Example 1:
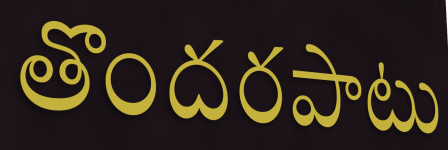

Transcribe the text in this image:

తొందరపాటు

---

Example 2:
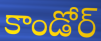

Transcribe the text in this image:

కాండోర్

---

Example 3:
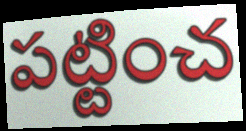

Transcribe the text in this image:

పట్టించ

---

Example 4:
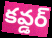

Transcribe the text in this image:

కవ్డర్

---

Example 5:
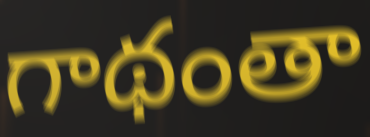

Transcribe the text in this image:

గాథంతా